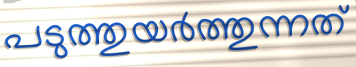
പടുത്തുയർത്തുന്നത്